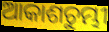
ଆକାଶଚୁମ୍ଭୀ